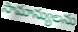
సామాన్యులను